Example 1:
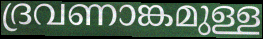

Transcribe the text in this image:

ദ്രവണാങ്കമുള്ള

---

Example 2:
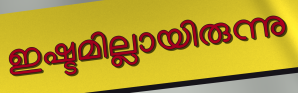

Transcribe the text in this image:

ഇഷ്ടമില്ലായിരുന്നു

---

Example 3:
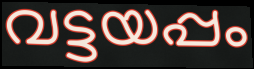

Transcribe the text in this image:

വട്ടയപ്പം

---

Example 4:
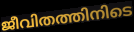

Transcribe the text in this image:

ജീവിതത്തിനിടെ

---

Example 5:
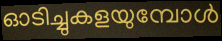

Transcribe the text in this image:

ഓടിച്ചുകളയുമ്പോൾ